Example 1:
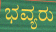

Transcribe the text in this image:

ಭವ್ಯರು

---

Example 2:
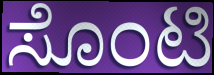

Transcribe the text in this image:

ಸೊಂಟಿ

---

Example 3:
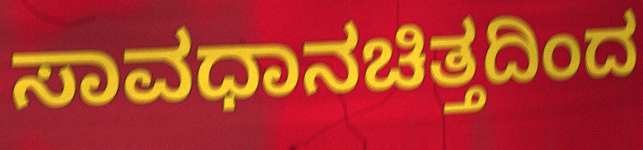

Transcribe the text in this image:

ಸಾವಧಾನಚಿತ್ತದಿಂದ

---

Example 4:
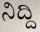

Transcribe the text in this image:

ನಿದ್ದಿ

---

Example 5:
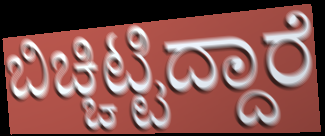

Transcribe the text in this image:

ಬಿಚ್ಚಿಟ್ಟಿದ್ದಾರೆ